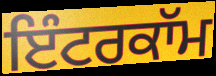
ਇੰਟਰਕਾੱਮ